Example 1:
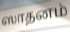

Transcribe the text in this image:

ஸாதனம்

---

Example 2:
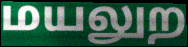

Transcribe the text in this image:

மயலுற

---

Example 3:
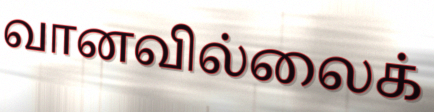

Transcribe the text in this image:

வானவில்லைக்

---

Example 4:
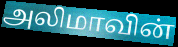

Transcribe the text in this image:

அலிமாவின்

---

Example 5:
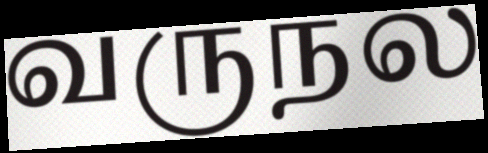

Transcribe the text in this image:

வருநல